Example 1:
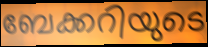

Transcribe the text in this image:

ബേക്കറിയുടെ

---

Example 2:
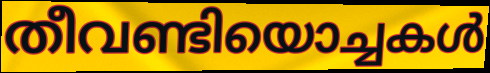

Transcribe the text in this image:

തീവണ്ടിയൊച്ചകൾ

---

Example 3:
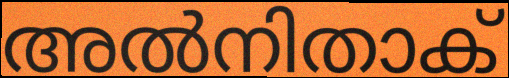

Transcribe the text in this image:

അൽനിതാക്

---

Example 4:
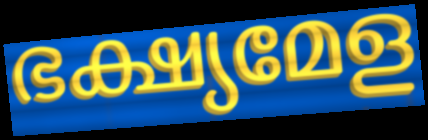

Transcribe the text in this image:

ഭക്ഷ്യമേള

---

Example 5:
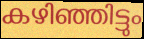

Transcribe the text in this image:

കഴിഞ്ഞിട്ടും